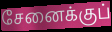
சேனைக்குப்